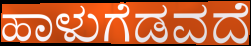
ಹಾಳುಗೆಡವದೆ